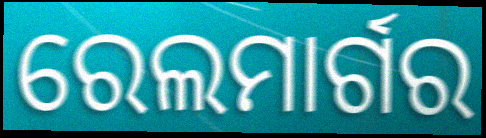
ରେଲମାର୍ଗର